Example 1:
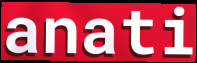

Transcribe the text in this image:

anati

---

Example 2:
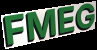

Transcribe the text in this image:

FMEG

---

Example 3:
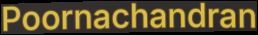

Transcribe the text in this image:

Poornachandran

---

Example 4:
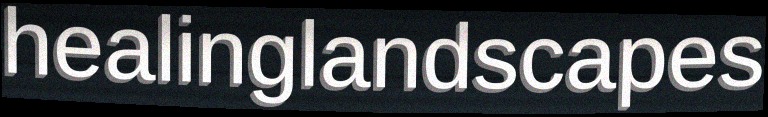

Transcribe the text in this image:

healinglandscapes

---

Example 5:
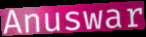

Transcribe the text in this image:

Anuswar